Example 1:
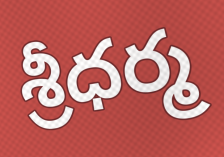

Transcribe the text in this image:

శ్రీధర్మ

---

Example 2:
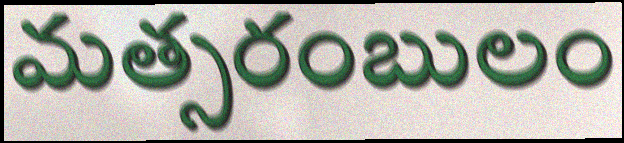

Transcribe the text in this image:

మత్సరంబులం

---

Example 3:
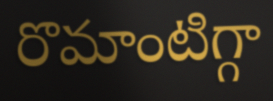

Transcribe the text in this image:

రొమాంటిగ్గా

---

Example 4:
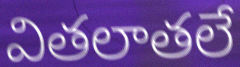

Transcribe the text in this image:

వితలాతలే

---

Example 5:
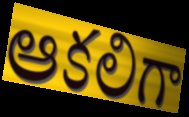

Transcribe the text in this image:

ఆకలిగా